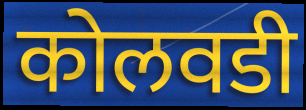
कोलवडी